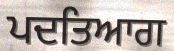
ਪਦਤਿਆਗ